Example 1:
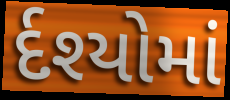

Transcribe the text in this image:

ર્દશ્યોમાં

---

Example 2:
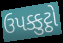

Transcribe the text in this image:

ઉપક્કુટ્ઠો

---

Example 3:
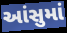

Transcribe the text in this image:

આંસુમાં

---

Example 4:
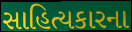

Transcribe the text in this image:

સાહિત્યકારના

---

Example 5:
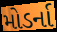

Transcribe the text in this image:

મોડર્ના